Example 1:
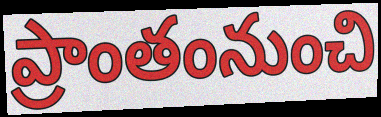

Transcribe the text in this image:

ప్రాంతంనుంచి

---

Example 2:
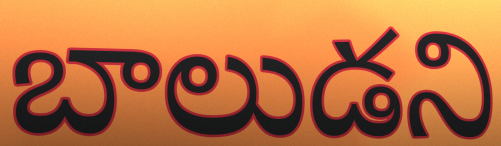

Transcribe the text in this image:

బాలుడని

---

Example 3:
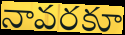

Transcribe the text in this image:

నావరకూ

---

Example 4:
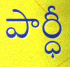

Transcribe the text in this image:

పార్ధీ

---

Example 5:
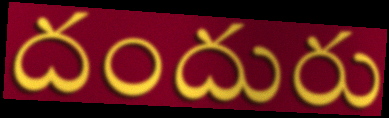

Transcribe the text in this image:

దందురు